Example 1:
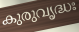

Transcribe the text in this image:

കുരുവൃദ്ധഃ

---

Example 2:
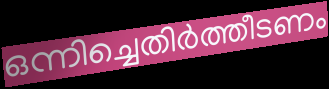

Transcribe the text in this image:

ഒന്നിച്ചെതിർത്തീടണം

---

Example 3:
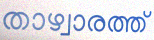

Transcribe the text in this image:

താഴ്വാരത്ത്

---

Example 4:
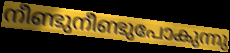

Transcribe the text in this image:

നീണ്ടുനീണ്ടുപോകുന്നു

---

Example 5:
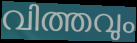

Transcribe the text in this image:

വിത്തവും